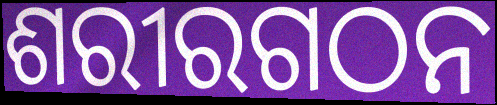
ଶରୀରଗଠନ